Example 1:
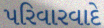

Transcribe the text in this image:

પરિવારવાદે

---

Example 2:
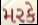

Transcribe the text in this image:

મરકે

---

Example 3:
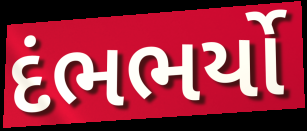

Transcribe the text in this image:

દંભભર્યો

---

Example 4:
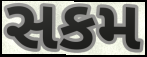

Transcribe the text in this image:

સકમ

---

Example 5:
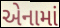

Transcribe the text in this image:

એનામાં